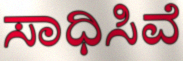
ಸಾಧಿಸಿವೆ